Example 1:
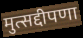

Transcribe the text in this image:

मुत्सद्दीपणा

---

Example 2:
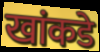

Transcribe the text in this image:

खांकडे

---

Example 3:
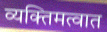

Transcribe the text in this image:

व्यक्तिमत्वात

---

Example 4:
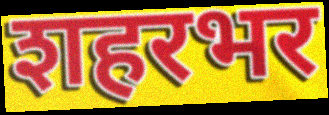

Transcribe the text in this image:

शहरभर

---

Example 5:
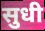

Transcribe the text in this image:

सुधी